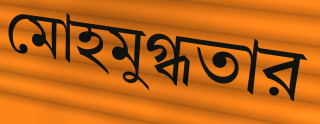
মোহমুগ্ধতার